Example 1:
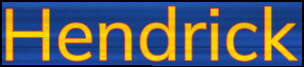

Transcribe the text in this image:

Hendrick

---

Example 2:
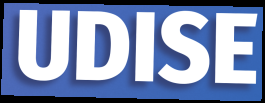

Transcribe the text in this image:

UDISE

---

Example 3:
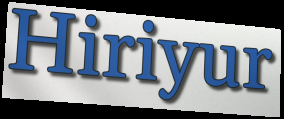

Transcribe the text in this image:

Hiriyur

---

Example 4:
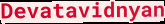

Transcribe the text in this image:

Devatavidnyan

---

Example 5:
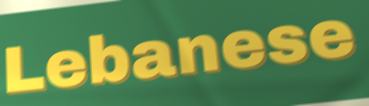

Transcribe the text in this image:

Lebanese